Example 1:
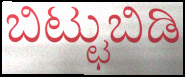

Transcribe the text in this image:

ಬಿಟ್ಟುಬಿಡಿ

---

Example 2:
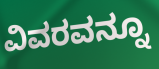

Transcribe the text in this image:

ವಿವರವನ್ನೂ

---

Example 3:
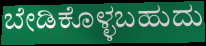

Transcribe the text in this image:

ಬೇಡಿಕೊಳ್ಳಬಹುದು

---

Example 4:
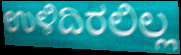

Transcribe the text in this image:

ಉಳಿದಿರಲಿಲ್ಲ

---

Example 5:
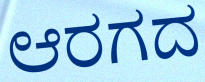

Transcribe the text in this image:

ಆರಗದ